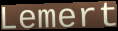
Lemert